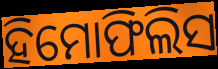
ହିମୋଫିଲିସ